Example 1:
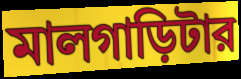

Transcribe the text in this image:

মালগাড়িটার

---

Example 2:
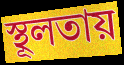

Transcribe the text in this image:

স্থূলতায়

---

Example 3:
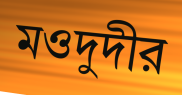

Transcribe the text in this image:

মওদুদীর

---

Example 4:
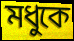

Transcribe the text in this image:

মধুকে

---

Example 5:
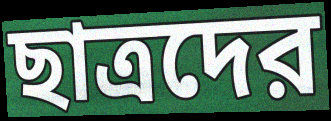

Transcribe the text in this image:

ছাত্রদের